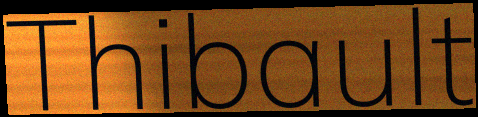
Thibault